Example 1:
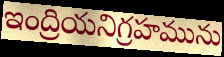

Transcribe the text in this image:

ఇంద్రియనిగ్రహమును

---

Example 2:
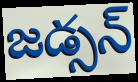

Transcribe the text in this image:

జడ్సన్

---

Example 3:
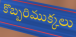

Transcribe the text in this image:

కొబ్బరిముక్కలు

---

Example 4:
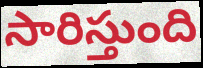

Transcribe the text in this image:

సారిస్తుంది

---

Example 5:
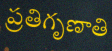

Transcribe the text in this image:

ప్రతిగృణాతి